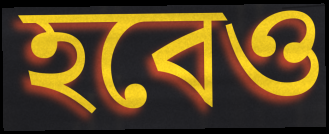
হবেও